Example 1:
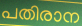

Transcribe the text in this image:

പതിരാന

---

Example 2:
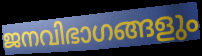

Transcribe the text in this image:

ജനവിഭാഗങ്ങളും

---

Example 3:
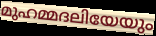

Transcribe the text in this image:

മുഹമ്മദലിയേയും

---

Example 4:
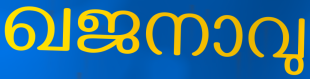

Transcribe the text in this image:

ഖജനാവു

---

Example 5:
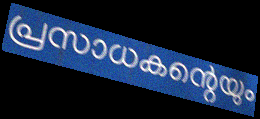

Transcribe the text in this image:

പ്രസാധകന്റെയും